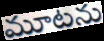
మూటను